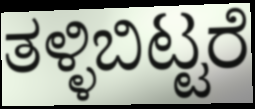
ತಳ್ಳಿಬಿಟ್ಟರೆ